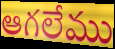
ఆగలేము